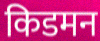
किडमन